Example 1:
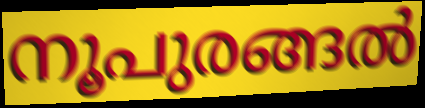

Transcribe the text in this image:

നൂപുരങ്ങൽ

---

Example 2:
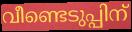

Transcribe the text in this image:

വീണ്ടെടുപ്പിന്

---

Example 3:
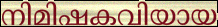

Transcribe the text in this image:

നിമിഷകവിയായ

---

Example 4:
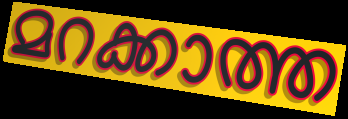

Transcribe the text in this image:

മറക്കാത്ത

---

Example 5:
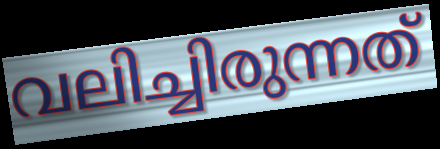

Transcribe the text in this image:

വലിച്ചിരുന്നത്